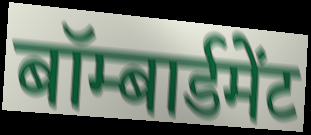
बॉम्बार्डमेंट